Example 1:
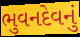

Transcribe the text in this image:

ભુવનદેવનું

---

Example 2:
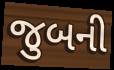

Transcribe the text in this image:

જુબની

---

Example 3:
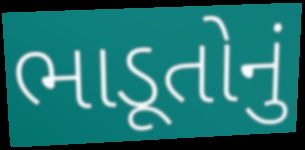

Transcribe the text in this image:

ભાડૂતોનું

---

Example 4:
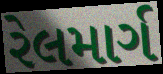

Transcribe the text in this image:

રેલમાર્ગ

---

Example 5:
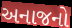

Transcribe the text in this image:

અનાજનો